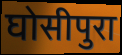
घोसीपुरा